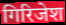
गिरिजेश